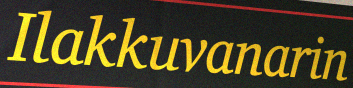
Ilakkuvanarin